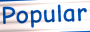
Popular